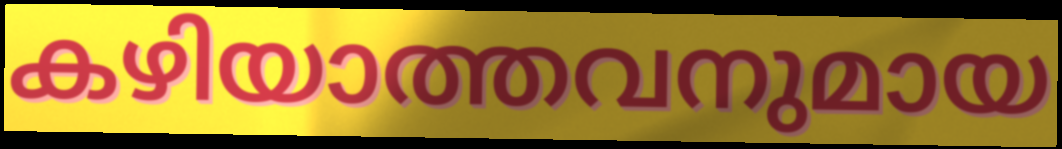
കഴിയാത്തവനുമായ